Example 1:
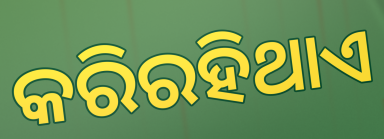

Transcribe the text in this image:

କରିରହିଥାଏ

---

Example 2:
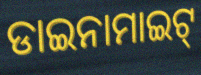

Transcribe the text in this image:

ଡାଇନାମାଇଟ୍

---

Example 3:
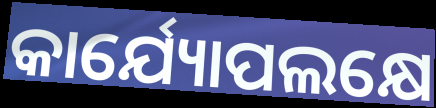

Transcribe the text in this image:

କାର୍ଯ୍ୟୋପଲକ୍ଷେ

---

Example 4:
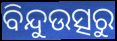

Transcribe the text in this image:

ବିନ୍ଦୁଉତ୍ସରୁ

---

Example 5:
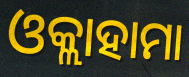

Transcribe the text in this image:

ଓକ୍ଲାହାମା